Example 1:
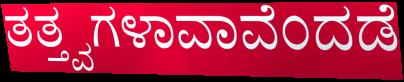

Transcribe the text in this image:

ತತ್ತ್ವಗಳಾವಾವೆಂದಡೆ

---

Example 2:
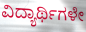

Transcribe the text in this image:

ವಿದ್ಯಾರ್ಥಿಗಳೇ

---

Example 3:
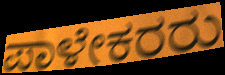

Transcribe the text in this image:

ಪಾಳೇಕರರು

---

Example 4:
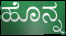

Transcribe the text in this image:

ಹೊನ್ನ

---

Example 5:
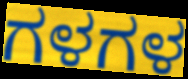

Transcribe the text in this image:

ಗಳಗಳ